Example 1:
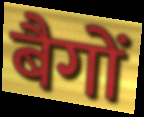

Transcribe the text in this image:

बैगों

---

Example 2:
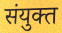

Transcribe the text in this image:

संयुक्त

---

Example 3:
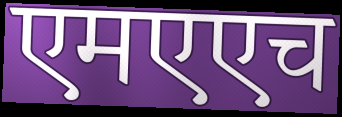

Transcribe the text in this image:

एमएएच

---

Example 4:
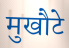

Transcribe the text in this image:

मुखौटे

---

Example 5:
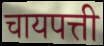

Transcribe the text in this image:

चायपत्ती